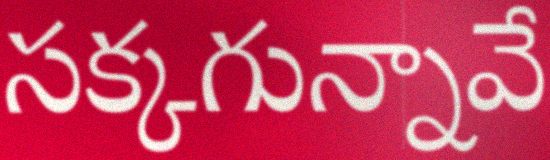
సక్కగున్నావే